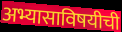
अभ्यासाविषयीची